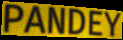
PANDEY